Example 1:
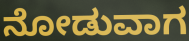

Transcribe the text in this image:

ನೋಡುವಾಗ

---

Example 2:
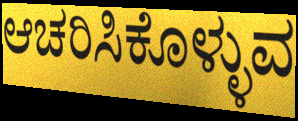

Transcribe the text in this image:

ಆಚರಿಸಿಕೊಳ್ಳುವ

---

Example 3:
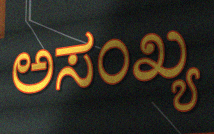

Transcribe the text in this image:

ಅಸಂಖ್ಯ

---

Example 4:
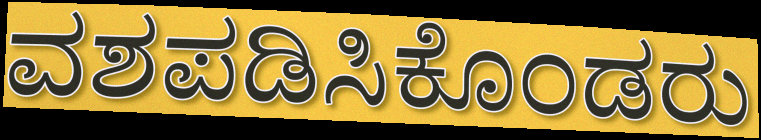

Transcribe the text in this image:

ವಶಪಡಿಸಿಕೊಂಡರು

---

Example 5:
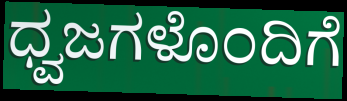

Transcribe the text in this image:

ಧ್ವಜಗಳೊಂದಿಗೆ